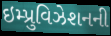
ઇમ્પ્રુવિઝેશનની